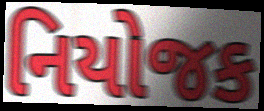
નિયોજક